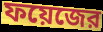
ফয়েজের